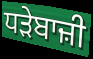
ਧੜੇਬਾਜ਼ੀ